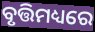
ବୃତ୍ତିମଧ୍ୟରେ